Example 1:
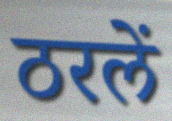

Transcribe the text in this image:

ठरलें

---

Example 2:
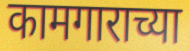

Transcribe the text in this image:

कामगाराच्या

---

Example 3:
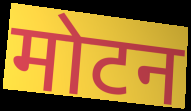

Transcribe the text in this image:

मोटन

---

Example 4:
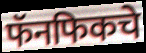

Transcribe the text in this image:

फॅनफिकचे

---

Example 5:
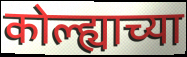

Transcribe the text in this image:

कोल्ह्याच्या